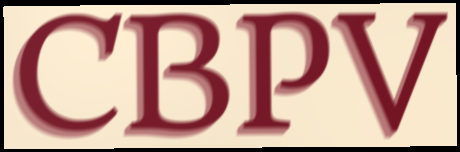
CBPV